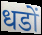
धडों